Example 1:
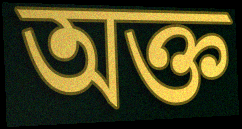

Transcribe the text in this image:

অক্ত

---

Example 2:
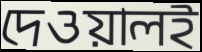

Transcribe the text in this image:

দেওয়ালই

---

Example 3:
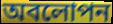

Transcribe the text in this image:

অবলোপন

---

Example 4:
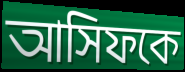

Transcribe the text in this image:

আসিফকে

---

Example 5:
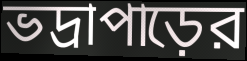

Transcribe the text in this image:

ভদ্রাপাড়ের